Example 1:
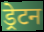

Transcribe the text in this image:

ड्रेटन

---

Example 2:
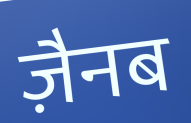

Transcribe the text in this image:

ज़ैनब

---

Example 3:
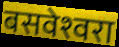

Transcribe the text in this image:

बसवेश्वरा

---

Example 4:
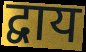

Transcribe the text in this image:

द्वाय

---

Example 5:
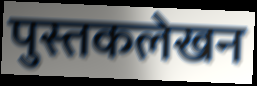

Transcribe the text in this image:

पुस्तकलेखन